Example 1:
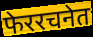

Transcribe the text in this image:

फेररचनेत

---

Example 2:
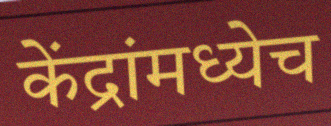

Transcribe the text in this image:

केंद्रांमध्येच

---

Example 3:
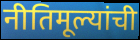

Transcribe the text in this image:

नीतिमूल्यांची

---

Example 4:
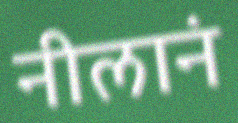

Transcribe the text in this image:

नीलानं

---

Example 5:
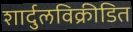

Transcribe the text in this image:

शार्दुलविक्रीडित